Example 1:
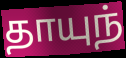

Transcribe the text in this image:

தாயுந்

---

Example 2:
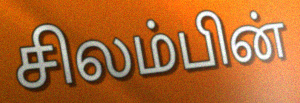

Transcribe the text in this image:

சிலம்பின்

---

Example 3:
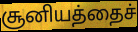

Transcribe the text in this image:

சூனியத்தைச்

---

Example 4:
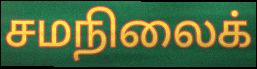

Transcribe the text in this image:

சமநிலைக்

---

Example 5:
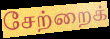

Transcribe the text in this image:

சேற்றைக்